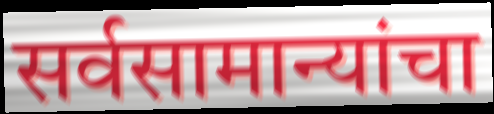
सर्वसामान्यांचा